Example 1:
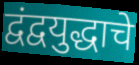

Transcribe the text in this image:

द्वंद्वयुद्धाचे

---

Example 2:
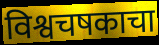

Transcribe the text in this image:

विश्वचषकाचा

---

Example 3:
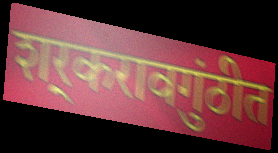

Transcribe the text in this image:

शर्करावगुंठीत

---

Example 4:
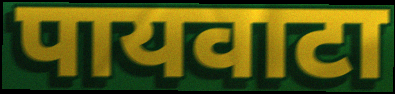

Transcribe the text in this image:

पायवाटा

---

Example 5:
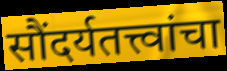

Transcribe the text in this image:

सौंदर्यतत्त्वांचा